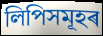
লিপিসমূহৰ